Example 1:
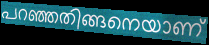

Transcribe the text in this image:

പറഞ്ഞതിങ്ങനെയാണ്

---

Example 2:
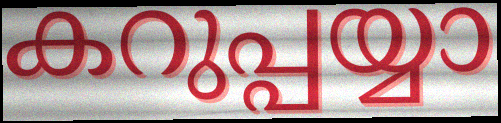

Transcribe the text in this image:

കറുപ്പയ്യാ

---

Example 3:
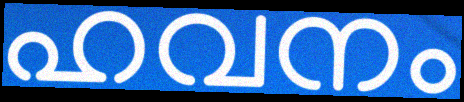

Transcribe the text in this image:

ഹവനം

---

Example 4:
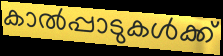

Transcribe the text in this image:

കാൽപ്പാടുകൾക്ക്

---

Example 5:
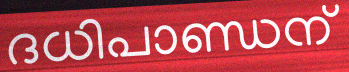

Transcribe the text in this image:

ദധിപാണ്ഡന്